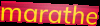
marathe